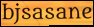
bjsasane